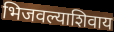
भिजवल्याशिवाय